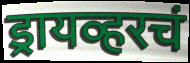
ड्रायव्हरचं